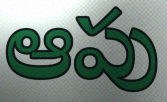
ఆపు